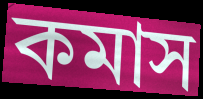
কমাস